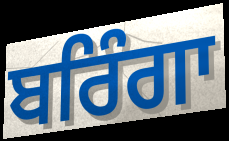
ਬਰਿੰਗਾ